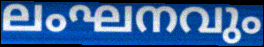
ലംഘനവും